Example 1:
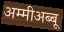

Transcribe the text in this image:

अम्मीअब्बू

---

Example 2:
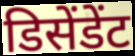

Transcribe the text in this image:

डिसेंडेंट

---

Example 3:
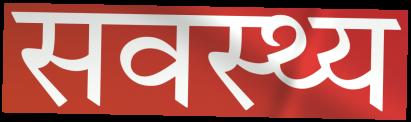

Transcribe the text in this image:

सवस्थ्य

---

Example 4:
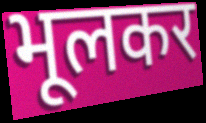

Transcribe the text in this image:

भूलकर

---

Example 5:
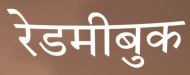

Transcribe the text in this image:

रेडमीबुक